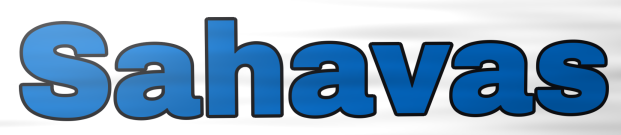
Sahavas